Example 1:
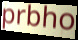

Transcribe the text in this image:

prbho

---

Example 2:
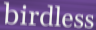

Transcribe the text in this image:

birdless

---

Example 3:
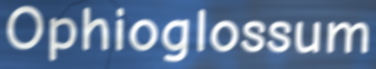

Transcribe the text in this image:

Ophioglossum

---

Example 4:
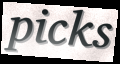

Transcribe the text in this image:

picks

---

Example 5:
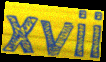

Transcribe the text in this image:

xvii